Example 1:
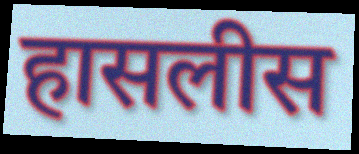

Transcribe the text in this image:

हासलीस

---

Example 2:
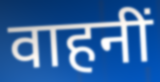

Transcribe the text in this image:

वाहनीं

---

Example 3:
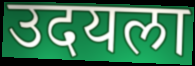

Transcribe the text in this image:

उदयला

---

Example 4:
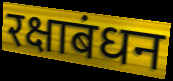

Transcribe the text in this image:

रक्षाबंधन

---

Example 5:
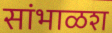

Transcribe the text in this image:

सांभाळश